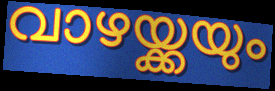
വാഴയ്ക്കയും